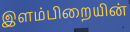
இளம்பிறையின்